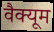
वैक्यूम